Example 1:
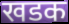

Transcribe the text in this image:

खडक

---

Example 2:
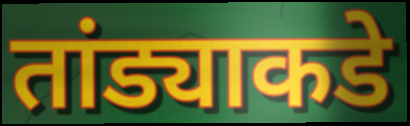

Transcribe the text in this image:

तांड्याकडे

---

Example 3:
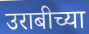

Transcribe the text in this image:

उराबीच्या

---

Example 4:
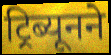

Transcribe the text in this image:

ट्रिब्यूनने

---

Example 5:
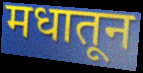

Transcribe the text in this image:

मधातून